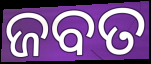
ଜବତ